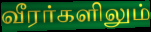
வீரர்களிலும்